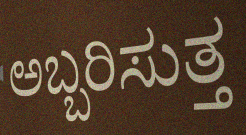
ಅಬ್ಬರಿಸುತ್ತ